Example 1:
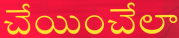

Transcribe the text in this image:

చేయించేలా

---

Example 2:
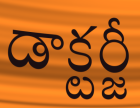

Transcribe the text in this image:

డాక్టర్జీ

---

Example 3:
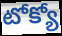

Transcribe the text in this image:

టోక్యో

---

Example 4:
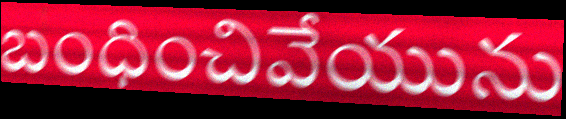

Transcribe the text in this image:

బంధించివేయును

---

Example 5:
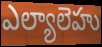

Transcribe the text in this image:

ఎల్యాలెహు